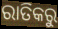
ରାତିକରୁ